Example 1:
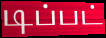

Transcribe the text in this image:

டிப்பட்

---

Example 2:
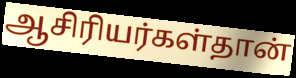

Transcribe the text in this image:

ஆசிரியர்கள்தான்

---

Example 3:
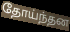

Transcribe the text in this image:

தோய்ந்தன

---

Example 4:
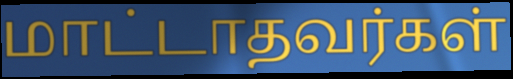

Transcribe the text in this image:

மாட்டாதவர்கள்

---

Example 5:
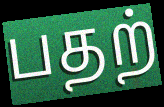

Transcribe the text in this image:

பதற்